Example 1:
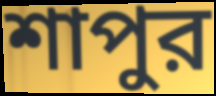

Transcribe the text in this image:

শাপুর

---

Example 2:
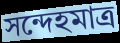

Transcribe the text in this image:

সন্দেহমাত্র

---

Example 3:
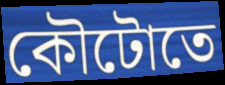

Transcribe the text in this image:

কৌটোতে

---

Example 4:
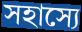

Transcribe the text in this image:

সহাস্যে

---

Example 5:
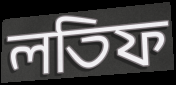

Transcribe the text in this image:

লতিফ